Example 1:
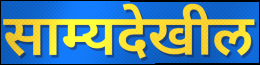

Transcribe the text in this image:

साम्यदेखील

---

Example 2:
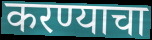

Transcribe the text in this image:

करण्याचा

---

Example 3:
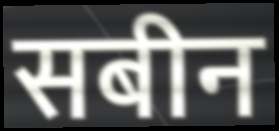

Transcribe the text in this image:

सबीन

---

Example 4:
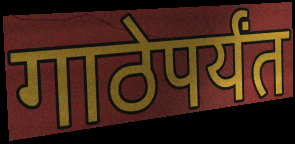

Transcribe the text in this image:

गाठेपर्यंत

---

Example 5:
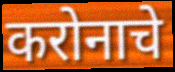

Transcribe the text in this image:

करोनाचे